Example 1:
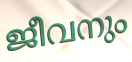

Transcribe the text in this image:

ജീവനും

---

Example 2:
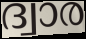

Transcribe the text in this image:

ദ്വാര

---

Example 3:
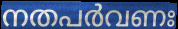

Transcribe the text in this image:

നതപർവണഃ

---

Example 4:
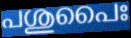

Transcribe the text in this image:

പശുപൈഃ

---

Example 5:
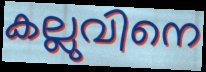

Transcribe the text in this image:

കല്ലുവിനെ